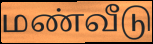
மண்வீடு